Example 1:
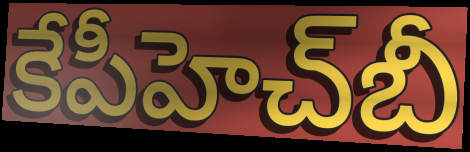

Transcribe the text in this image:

కేపీహెచ్‌బీ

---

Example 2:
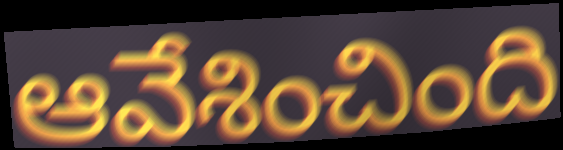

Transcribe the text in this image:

ఆవేశించింది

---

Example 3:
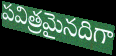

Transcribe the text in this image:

పవిత్రమైనదిగా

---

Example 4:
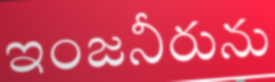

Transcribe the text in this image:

ఇంజనీరును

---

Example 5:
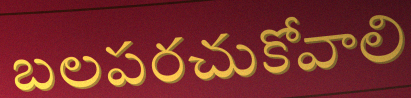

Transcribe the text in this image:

బలపరచుకోవాలి